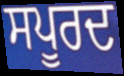
ਸਪੂਰਦ